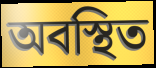
অবস্থিত